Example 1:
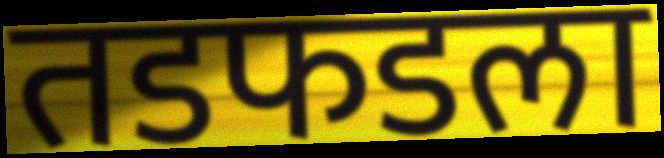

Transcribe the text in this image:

तडफडला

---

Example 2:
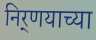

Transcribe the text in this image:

निर्णयाच्या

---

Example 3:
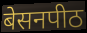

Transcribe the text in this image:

बेसनपीठ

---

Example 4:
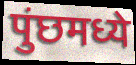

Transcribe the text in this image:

पुंछमध्ये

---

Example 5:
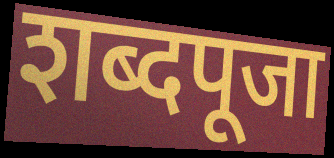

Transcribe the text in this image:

शब्दपूजा